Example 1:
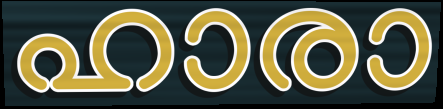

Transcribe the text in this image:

ഹാരാ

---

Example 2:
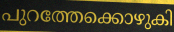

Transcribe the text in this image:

പുറത്തേക്കൊഴുകി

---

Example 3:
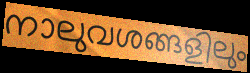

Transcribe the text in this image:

നാലുവശങ്ങളിലും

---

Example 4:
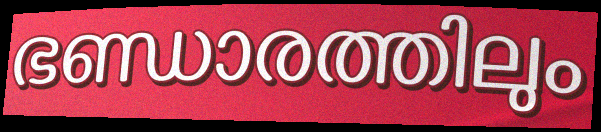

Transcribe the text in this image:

ഭണ്ഡാരത്തിലും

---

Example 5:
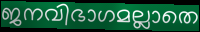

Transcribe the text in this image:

ജനവിഭാഗമല്ലാതെ